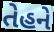
તેહને